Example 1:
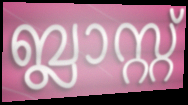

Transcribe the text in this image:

ബ്ലാസ്റ്റ്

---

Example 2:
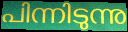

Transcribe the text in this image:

പിന്നിടുന്നു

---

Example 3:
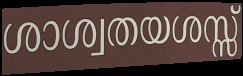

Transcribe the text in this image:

ശാശ്വതയശസ്സ്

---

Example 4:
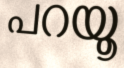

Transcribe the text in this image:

പറയൂ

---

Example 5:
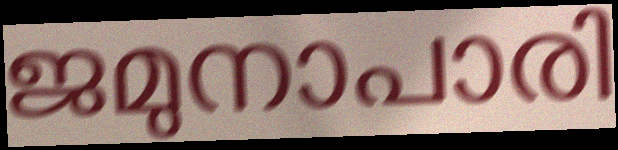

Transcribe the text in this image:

ജമുനാപാരി